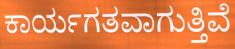
ಕಾರ್ಯಗತವಾಗುತ್ತಿವೆ